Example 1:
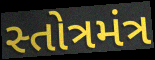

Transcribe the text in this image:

સ્તોત્રમંત્ર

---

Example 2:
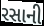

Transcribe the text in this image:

રસાની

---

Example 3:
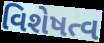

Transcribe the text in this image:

વિશેષત્વ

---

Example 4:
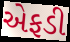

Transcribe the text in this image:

એફડી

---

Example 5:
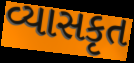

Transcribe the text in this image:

વ્યાસકૃત